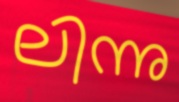
ലിന്നു